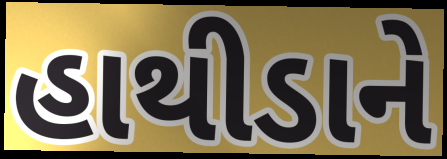
હાથીડાને